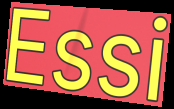
Essi